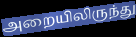
அறையிலிருந்து